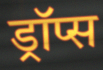
ड्रॉप्स